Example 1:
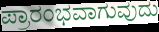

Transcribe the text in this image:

ಪ್ರಾರಂಭವಾಗುವುದು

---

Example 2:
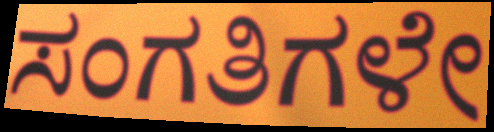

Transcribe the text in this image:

ಸಂಗತಿಗಳೇ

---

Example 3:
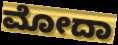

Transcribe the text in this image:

ಮೋದಾ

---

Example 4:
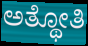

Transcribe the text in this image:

ಅತ್ಥೋತಿ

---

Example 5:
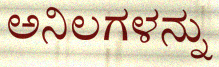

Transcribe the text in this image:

ಅನಿಲಗಳನ್ನು